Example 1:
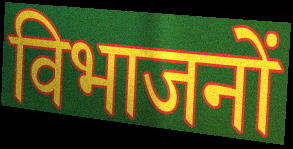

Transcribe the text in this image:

विभाजनों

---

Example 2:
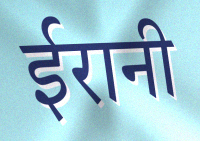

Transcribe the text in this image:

ईरानी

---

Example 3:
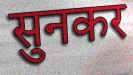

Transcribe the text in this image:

सुनकर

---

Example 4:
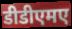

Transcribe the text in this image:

डीडीएमए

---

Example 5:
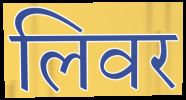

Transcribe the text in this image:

लिवर